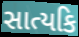
સાત્યકિ